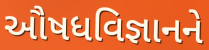
ઔષધવિજ્ઞાનને